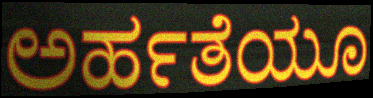
ಅರ್ಹತೆಯೂ